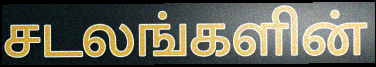
சடலங்களின்